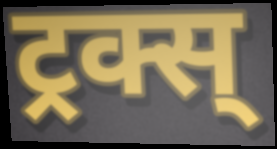
ट्रक्स्